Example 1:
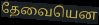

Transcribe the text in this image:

தேவையென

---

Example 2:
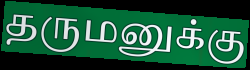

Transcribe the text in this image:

தருமனுக்கு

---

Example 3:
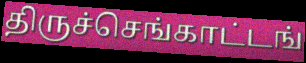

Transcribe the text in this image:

திருச்செங்காட்டங்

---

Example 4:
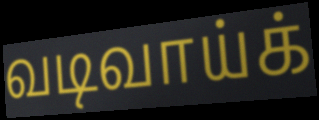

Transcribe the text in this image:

வடிவாய்க்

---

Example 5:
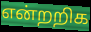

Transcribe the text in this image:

என்றறிக